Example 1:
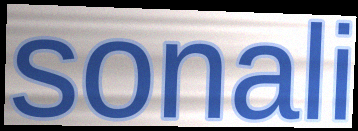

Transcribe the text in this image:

sonali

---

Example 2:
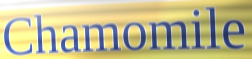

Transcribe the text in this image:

Chamomile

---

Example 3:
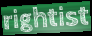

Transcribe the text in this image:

rightist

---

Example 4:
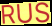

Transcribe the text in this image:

RUS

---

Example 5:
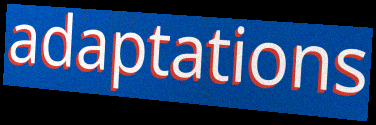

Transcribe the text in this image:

adaptations